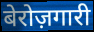
बेरोज़गारी